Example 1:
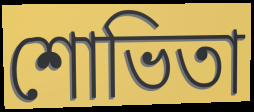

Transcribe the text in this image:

শোভিতা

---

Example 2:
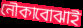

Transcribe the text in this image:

নৌকাবোঝাই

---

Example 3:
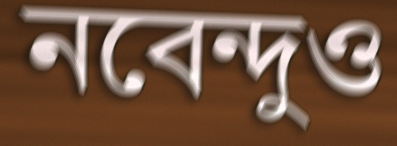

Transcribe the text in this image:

নবেন্দুও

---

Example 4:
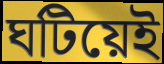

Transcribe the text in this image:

ঘটিয়েই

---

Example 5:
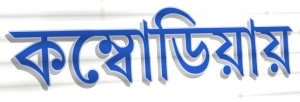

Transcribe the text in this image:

কম্বোডিয়ায়